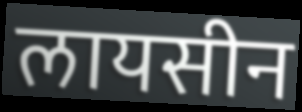
लायसीन